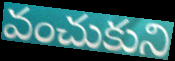
వంచుకుని